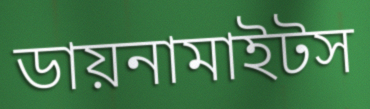
ডায়নামাইটস